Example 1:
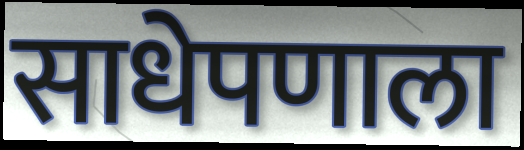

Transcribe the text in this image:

साधेपणाला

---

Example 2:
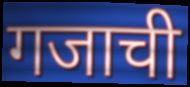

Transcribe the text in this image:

गजाची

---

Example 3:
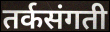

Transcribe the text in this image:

तर्कसंगती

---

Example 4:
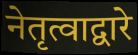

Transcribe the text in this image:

नेतृत्वाद्वारे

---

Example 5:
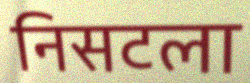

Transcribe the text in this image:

निसटला